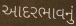
આદરભાવનું